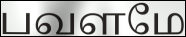
பவளமே